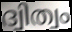
ദ്വിത്വം